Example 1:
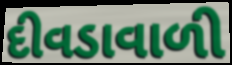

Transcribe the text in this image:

દીવડાવાળી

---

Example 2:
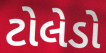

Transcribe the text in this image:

ટોલેડો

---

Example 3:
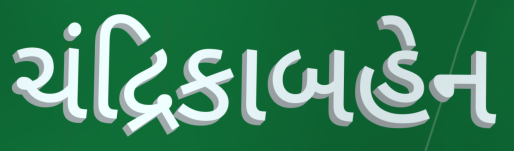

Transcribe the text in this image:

ચંદ્રિકાબહેન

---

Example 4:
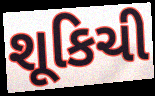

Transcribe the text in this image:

શૂકિચી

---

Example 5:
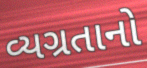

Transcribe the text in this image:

વ્યગ્રતાનો